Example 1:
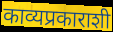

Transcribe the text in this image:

काव्यप्रकाराशी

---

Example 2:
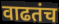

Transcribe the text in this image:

वाढतंच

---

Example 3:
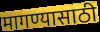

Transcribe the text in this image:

मागण्यासाठी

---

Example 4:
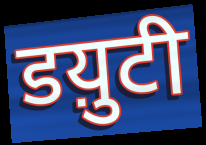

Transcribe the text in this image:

डय़ुटी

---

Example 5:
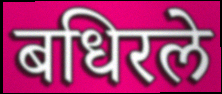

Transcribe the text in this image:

बधिरले